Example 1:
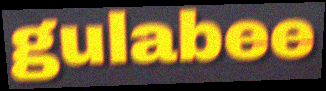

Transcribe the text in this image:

gulabee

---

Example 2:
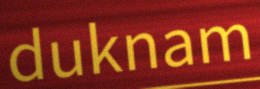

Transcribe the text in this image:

duknam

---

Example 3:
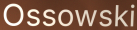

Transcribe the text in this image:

Ossowski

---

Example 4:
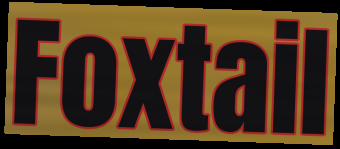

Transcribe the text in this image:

Foxtail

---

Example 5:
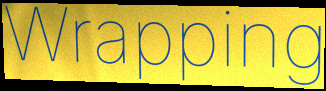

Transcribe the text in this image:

Wrapping